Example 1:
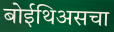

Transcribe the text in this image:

बोईथिअसचा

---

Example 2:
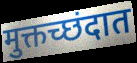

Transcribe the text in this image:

मुक्तच्छंदात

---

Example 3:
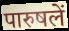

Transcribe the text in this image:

पारुषलें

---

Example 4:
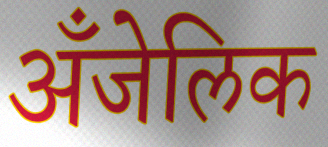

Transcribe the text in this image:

अँजेलिक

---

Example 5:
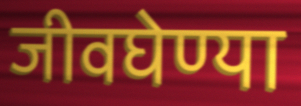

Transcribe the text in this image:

जीवघेण्या